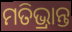
ମତିଭ୍ରାନ୍ତ